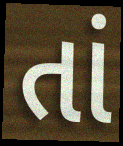
તાં